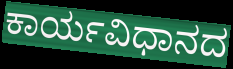
ಕಾರ್ಯವಿಧಾನದ